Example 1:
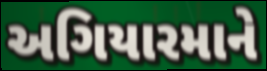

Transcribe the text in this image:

અગિયારમાને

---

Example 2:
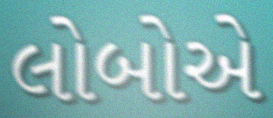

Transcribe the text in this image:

લોબોએ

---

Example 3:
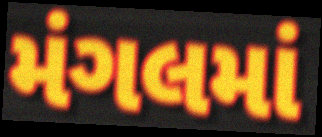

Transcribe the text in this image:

મંગલમાં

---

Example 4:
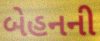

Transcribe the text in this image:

બેહનની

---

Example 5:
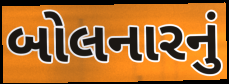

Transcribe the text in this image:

બોલનારનું